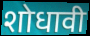
शोधावी